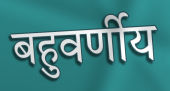
बहुवर्णीय